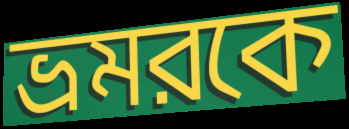
ভ্রমরকে